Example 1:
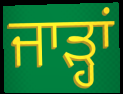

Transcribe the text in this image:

ਜਾੜ੍ਹਾਂ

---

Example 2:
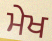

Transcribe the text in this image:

ਮੇਖ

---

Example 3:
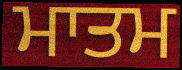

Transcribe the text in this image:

ਮਾਤਮ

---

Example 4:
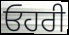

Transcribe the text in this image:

ਓਹਰੀ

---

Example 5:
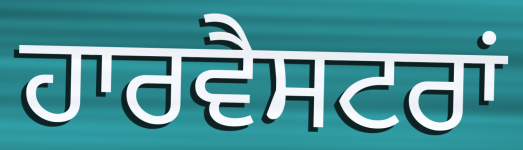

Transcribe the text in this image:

ਹਾਰਵੈਸਟਰਾਂ